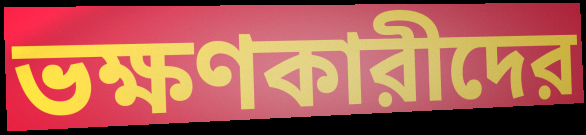
ভক্ষণকারীদের